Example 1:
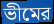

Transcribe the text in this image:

ভীমের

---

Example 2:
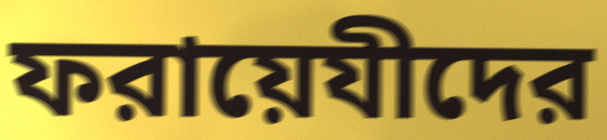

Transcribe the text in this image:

ফরায়েযীদের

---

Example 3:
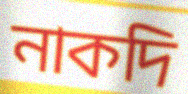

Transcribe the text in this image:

নাকদি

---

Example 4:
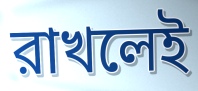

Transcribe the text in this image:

রাখলেই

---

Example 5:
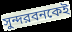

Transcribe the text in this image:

সুন্দরবনকেই